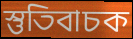
স্তুতিবাচক